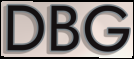
DBG